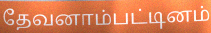
தேவனாம்பட்டினம்